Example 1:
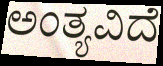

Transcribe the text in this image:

ಅಂತ್ಯವಿದೆ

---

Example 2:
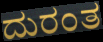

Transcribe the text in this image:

ದುರಂತ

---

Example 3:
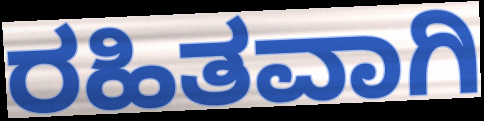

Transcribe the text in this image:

ರಹಿತವಾಗಿ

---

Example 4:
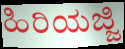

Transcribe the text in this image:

ಹಿರಿಯಜ್ಜಿ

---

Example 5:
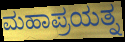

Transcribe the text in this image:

ಮಹಾಪ್ರಯತ್ನ